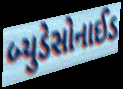
બ્યુડેસોનાઈડ